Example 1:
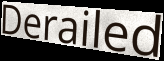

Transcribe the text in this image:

Derailed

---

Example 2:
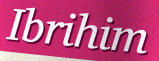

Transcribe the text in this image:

Ibrihim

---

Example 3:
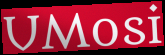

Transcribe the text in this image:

UMosi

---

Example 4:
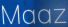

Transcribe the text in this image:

Maaz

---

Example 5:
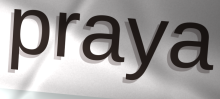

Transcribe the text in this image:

praya